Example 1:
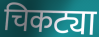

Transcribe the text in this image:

चिकट्या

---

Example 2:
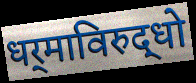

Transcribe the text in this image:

धर्माविरुद्धो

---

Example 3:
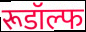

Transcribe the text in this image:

रूडॉल्फ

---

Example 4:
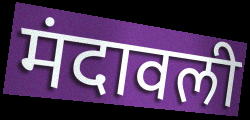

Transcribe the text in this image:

मंदावली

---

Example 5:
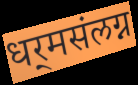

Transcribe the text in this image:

धर्मसंलग्न